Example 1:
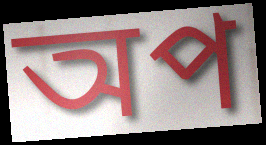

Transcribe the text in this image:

অপ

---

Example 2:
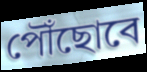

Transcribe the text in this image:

পৌঁছোবে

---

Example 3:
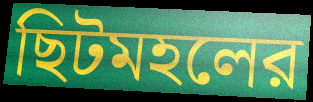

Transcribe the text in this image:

ছিটমহলের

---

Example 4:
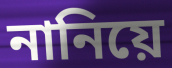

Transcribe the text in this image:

নানিয়ে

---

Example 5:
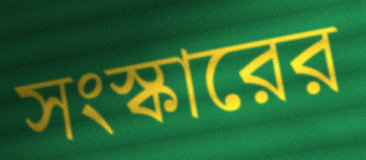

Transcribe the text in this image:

সংস্কারের